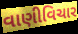
વાણીવિચાર